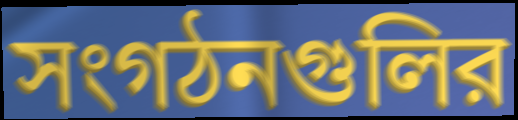
সংগঠনগুলির